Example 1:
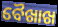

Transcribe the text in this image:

ବୈଖାଖ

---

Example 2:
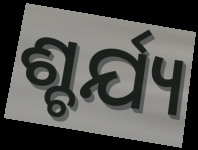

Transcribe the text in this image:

ଶ୍ଚର୍ଯ୍ୟ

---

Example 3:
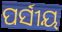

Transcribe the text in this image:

ପର୍ସୀୟ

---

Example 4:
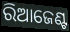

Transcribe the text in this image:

ରିଆଜେଣ୍ଟ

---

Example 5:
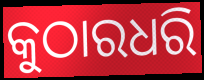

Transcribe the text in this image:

କୁଠାରଧରି